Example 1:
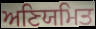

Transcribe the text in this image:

ਅਣਿਯਮਿਤ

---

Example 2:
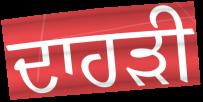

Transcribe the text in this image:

ਦਾਹੜੀ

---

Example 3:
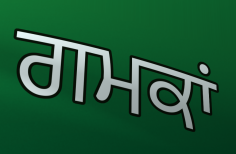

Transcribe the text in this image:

ਗਮਕਾਂ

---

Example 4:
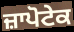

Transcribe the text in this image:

ਜ਼ਾਪੋਟੇਕ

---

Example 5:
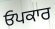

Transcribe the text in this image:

ਓਪਕਾਰ